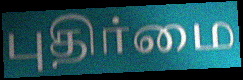
புதிர்மை